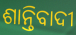
ଶାନ୍ତିବାଦୀ